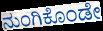
ನುಂಗಿಕೊಂಡೇ